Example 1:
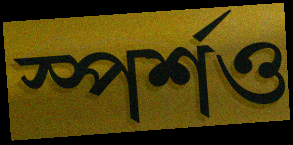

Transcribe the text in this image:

স্পর্শও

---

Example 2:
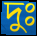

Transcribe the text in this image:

দুঃ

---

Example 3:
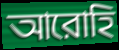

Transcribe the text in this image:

আরোহি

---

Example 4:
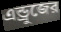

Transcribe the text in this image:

এন্ড্রুজের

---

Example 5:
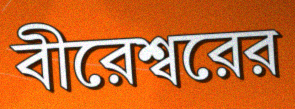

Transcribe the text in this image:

বীরেশ্বরের